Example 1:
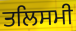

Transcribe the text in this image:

ਤਲਿਸਮੀ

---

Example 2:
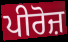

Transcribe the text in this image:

ਪੀਰੋਜ਼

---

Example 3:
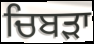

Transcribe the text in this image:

ਚਿਬੜਾ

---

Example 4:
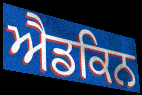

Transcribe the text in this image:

ਐਡਕਿਨ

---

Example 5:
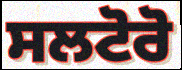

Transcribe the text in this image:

ਸਲਟੋਰੋ